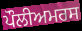
ਪੌਲੀਅਮਰਸ